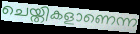
ചെയ്തികളാണെന്ന